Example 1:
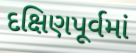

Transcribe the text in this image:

દક્ષિણપૂર્વમાં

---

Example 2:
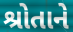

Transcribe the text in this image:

શ્રોતાને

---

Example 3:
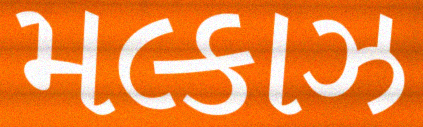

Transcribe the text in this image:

મલ્કાઝ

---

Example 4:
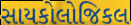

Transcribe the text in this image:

સાયકોલોજિકલ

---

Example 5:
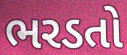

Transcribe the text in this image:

ભરડતો